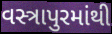
વસ્ત્રાપુરમાંથી